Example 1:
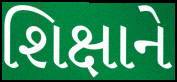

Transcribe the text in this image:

શિક્ષાને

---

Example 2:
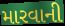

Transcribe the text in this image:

મારવાની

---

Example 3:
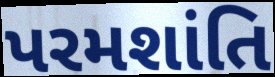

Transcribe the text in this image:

પરમશાંતિ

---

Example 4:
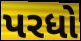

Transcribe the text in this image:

પરધો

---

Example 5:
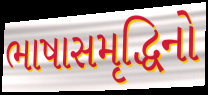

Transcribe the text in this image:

ભાષાસમૃદ્ધિનો